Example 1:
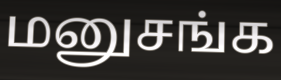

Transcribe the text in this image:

மனுசங்க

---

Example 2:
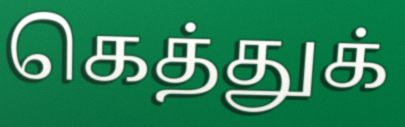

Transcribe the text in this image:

கெத்துக்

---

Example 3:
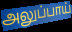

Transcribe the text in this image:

அலுப்பாய்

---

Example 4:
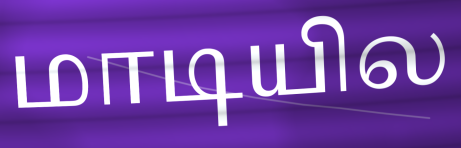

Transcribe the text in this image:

மாடியில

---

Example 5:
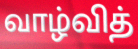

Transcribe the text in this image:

வாழ்வித்